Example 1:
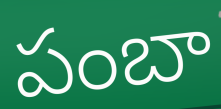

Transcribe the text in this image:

పంబా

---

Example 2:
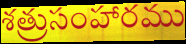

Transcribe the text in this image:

శత్రుసంహారము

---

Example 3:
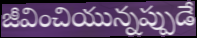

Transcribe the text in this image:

జీవించియున్నప్పుడే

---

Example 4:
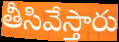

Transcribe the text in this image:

తీసివేస్తారు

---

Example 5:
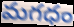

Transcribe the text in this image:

మగధం